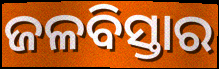
ଜଳବିସ୍ତାର